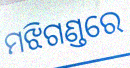
ମଝିଗଣ୍ଡରେ